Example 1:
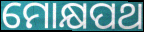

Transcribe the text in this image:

ମୋକ୍ଷପଥ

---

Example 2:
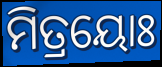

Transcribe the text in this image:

ମିତ୍ରୟୋଃ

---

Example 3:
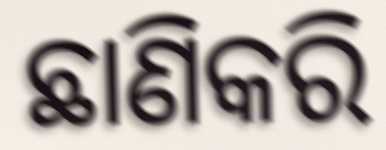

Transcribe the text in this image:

ଛାଣିକରି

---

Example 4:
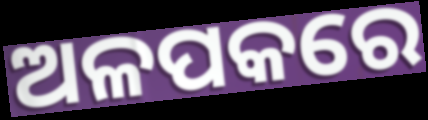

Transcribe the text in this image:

ଅଳପକରେ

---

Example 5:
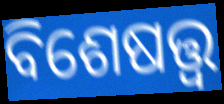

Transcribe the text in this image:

ବିଶେଷତ୍ତ୍ୱ